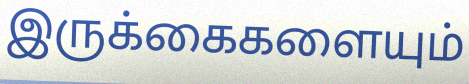
இருக்கைகளையும்